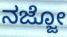
ನಜ್ಜೋ